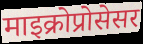
माइक्रोप्रोसेसर